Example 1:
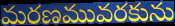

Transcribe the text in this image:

మరణమువరకును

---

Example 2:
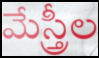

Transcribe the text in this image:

మేస్త్రీల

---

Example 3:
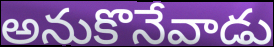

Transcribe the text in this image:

అనుకొనేవాడు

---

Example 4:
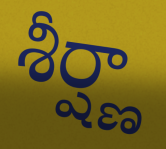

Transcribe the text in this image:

శీర్ష్ణా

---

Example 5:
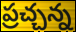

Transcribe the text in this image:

ప్రచ్చన్న